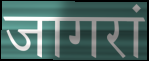
जागरां